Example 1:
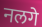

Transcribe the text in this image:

नलगे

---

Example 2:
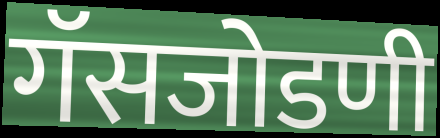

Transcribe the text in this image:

गॅसजोडणी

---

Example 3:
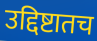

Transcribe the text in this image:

उद्दिष्टातच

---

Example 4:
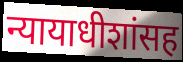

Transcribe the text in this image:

न्यायाधीशांसह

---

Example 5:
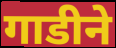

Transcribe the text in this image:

गाडीने